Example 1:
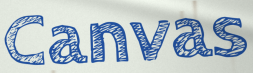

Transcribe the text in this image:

Canvas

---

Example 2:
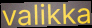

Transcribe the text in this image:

valikka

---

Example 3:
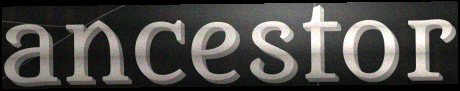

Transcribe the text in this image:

ancestor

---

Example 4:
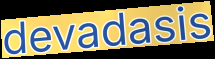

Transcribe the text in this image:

devadasis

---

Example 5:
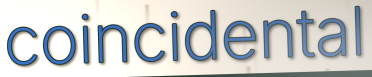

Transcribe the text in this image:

coincidental